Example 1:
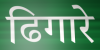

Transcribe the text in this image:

ढिगारे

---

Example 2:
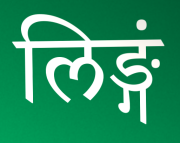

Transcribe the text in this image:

लिङ्गं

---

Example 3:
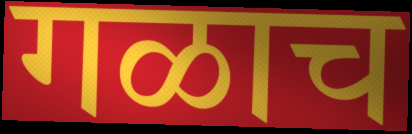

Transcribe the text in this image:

गळाच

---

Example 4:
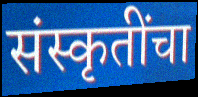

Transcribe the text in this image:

संस्कृतींचा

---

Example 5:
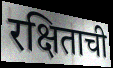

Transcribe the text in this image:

रक्षिताची